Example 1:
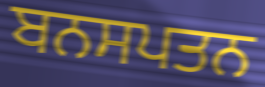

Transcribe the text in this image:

ਬਨਸਪਤਨ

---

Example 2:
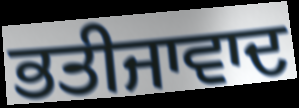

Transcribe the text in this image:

ਭਤੀਜਾਵਾਦ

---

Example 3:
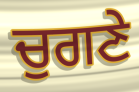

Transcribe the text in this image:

ਚੁਗਣੇ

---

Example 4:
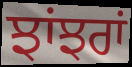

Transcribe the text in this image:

ਝਾਂਝਰਾਂ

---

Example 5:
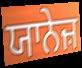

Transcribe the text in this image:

ਯਾਨੇਜ਼